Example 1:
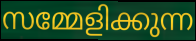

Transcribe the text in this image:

സമ്മേളിക്കുന്ന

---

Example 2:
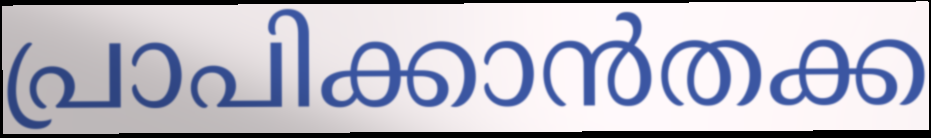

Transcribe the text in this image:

പ്രാപിക്കാൻതക്ക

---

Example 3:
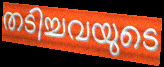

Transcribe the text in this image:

തടിച്ചവയുടെ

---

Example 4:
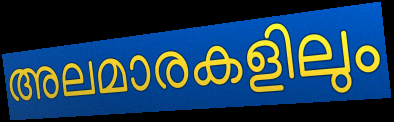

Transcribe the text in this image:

അലമാരകളിലും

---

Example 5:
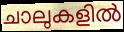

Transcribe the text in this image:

ചാലുകളിൽ